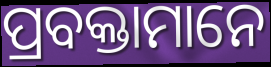
ପ୍ରବକ୍ତାମାନେ